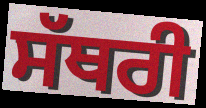
ਸੱਥਰੀ